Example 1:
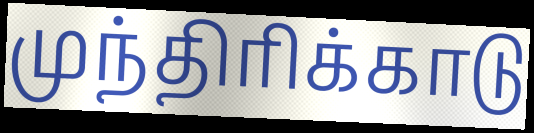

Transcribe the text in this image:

முந்திரிக்காடு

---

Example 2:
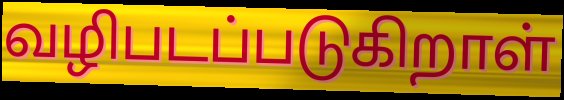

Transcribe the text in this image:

வழிபடப்படுகிறாள்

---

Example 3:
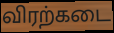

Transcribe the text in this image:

விரற்கடை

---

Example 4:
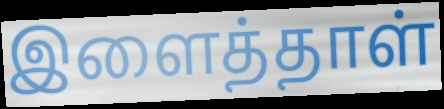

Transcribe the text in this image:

இளைத்தாள்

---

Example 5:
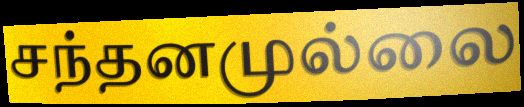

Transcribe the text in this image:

சந்தனமுல்லை